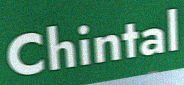
Chintal